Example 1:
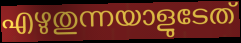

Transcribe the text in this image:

എഴുതുന്നയാളുടേത്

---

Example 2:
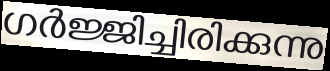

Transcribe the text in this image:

ഗർജ്ജിച്ചിരിക്കുന്നു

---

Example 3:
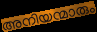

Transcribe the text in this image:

അനിയന്മാരും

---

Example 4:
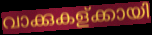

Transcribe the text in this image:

വാക്കുകള്ക്കായി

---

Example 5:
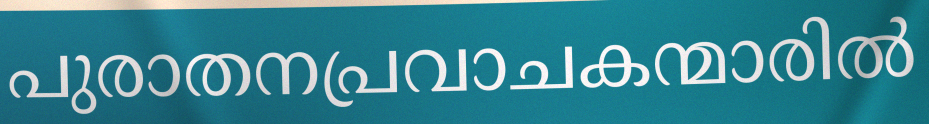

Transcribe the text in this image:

പുരാതനപ്രവാചകന്മാരിൽ